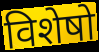
विशेषो